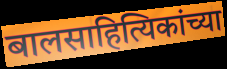
बालसाहित्यिकांच्या